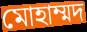
মোহাম্মদ